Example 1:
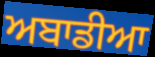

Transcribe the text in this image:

ਅਬਾਡੀਆ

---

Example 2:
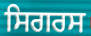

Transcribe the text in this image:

ਸਿਗਰਸ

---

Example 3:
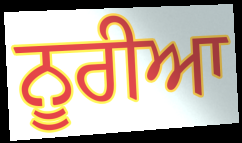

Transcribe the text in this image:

ਨੂਰੀਆ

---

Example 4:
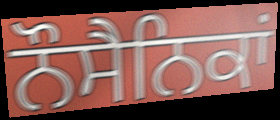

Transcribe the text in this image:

ਨੌਸੈਨਿਕਾਂ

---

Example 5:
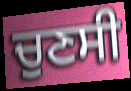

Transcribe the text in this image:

ਚੁਣਸੀ